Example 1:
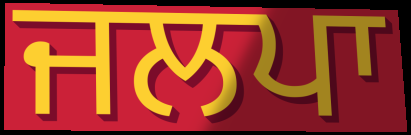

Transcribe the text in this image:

ਜਲਪਾ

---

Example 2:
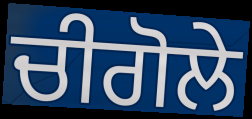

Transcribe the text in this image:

ਚੀਗੋਲੇ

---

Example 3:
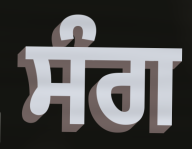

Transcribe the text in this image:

ਸੰਗ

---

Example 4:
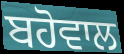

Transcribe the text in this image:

ਬਹੋਵਾਲ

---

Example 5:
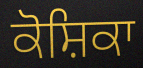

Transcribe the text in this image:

ਕੋਸ਼ਿਕਾ